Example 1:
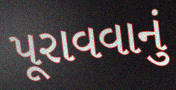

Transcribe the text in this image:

પૂરાવવાનું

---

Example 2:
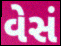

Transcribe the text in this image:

વેસં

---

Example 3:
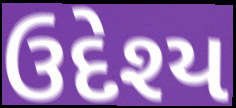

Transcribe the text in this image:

ઉદેશ્ય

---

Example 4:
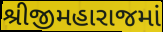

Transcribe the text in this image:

શ્રીજીમહારાજમાં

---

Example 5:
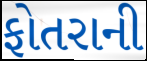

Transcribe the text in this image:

ફોતરાની